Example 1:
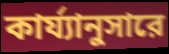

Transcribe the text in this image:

কার্য্যানুসারে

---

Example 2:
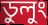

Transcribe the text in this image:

ডুলুং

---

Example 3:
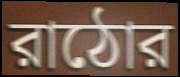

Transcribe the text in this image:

রাঠোর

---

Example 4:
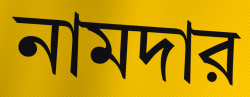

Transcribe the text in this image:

নামদার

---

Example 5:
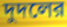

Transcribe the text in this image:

দুদলের